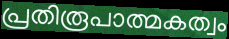
പ്രതിരൂപാത്മകത്വം